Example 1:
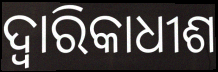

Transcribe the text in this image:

ଦ୍ୱାରିକାଧୀଶ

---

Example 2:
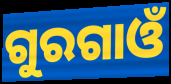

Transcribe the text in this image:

ଗୁରଗାଓଁ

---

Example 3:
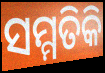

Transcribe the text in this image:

ସମ୍ମତିକି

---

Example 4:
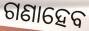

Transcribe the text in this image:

ଗଣାହେବ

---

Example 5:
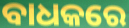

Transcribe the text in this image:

ବାଧକରେ